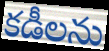
కడీలను